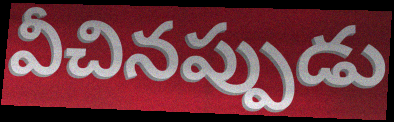
వీచినప్పుడు